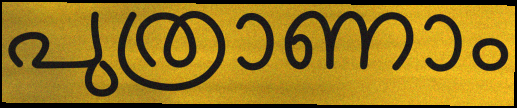
പുത്രാണാം